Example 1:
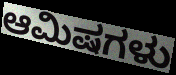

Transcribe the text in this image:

ಆಮಿಷಗಳು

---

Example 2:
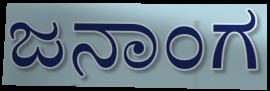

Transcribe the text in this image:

ಜನಾಂಗ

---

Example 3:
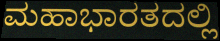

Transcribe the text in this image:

ಮಹಾಭಾರತದಲ್ಲಿ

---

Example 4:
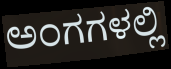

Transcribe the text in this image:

ಅಂಗಗಳಲ್ಲಿ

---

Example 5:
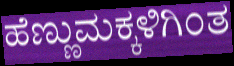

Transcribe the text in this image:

ಹೆಣ್ಣುಮಕ್ಕಳಿಗಿಂತ